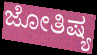
ಜೋತಿಷ್ಯ